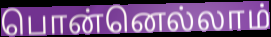
பொன்னெல்லாம்